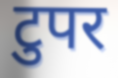
टुपर